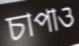
চাপাও